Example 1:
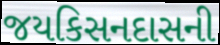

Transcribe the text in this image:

જયકિસનદાસની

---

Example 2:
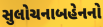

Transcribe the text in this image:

સુલોચનાબહેનનો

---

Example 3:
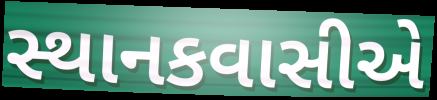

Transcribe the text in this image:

સ્થાનકવાસીએ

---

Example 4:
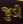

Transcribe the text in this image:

જુડી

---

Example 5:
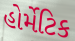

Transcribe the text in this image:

હોર્મેટિક